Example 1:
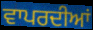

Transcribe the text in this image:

ਵਾਪਰਦੀਆਂ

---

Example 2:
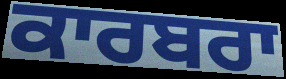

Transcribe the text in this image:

ਕਾਰਬਰਾ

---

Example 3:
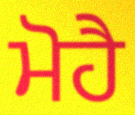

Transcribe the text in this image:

ਮੋਹੈ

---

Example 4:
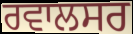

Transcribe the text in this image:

ਰਵਾਲਸਰ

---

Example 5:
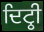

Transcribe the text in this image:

ਦਿਟ੍ਠੀ